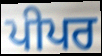
ਪੀਪਰ